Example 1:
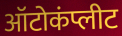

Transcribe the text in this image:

ऑटोकंप्लीट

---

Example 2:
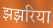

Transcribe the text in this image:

झझरिया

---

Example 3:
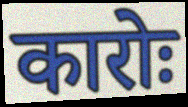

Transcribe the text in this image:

कारोः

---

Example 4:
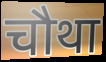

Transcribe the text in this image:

चौथा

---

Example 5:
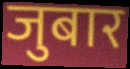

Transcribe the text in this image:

जुबार